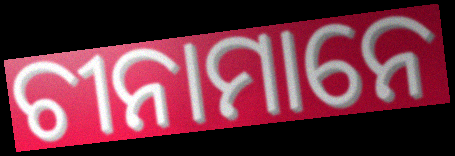
ଚୀନାମାନେ